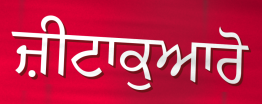
ਜ਼ੀਟਾਕੁਆਰੋ